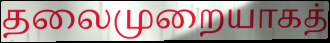
தலைமுறையாகத்